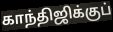
காந்திஜிக்குப்